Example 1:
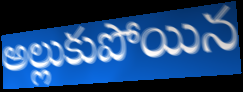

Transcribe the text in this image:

అల్లుకుపోయిన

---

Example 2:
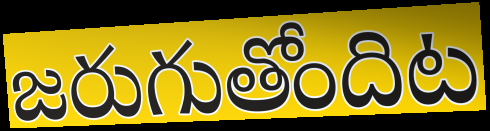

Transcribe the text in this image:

జరుగుతోందిట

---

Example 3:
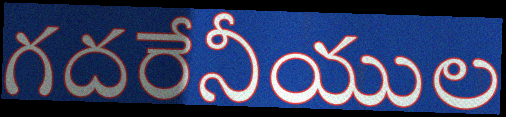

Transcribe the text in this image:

గదరేనీయుల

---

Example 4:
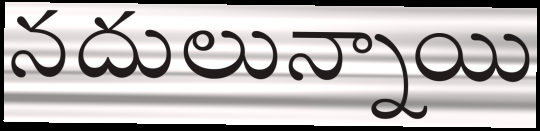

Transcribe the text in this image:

నదులున్నాయి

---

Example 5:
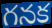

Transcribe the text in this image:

గనక